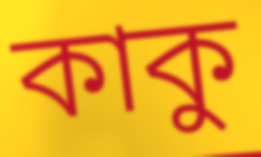
কাকু